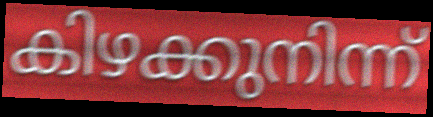
കിഴക്കുനിന്ന്